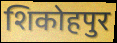
शिकोहपुर